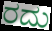
ರದು